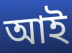
আই